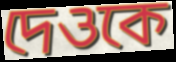
দেওকে